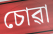
চোৱা